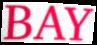
BAY